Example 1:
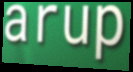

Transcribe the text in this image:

arup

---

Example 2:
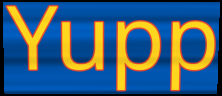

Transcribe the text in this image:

Yupp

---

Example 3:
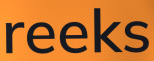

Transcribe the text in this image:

reeks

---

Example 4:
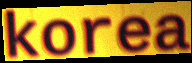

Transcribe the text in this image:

korea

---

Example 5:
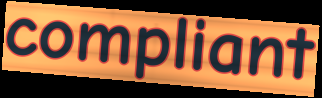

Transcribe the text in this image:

compliant